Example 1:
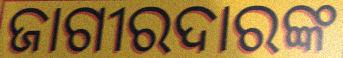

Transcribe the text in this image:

ଜାଗୀରଦାରଙ୍କ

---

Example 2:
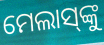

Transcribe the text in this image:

ମେଲାସ୍‌ଙ୍କୁ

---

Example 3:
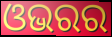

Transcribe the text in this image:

ଓଭରର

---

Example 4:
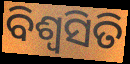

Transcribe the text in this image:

ବିଶ୍ଵସିତି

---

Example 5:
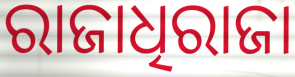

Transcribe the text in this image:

ରାଜାଧିରାଜା